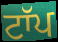
ਟਾੱਪ